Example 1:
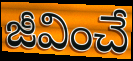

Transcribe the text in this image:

జీవించే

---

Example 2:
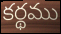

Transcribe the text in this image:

కర్థము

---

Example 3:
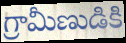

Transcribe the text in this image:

గ్రామీణుడికి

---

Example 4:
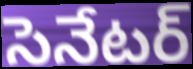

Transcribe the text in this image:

సెనేటర్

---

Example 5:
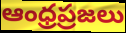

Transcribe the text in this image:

ఆంధ్రప్రజలు